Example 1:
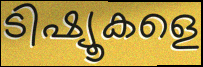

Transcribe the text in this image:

ടിഷ്യൂകളെ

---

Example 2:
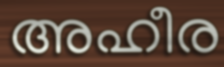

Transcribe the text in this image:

അഹീര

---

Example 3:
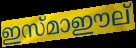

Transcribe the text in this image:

ഇസ്മാഈല്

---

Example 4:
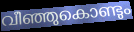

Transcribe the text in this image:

വീഞ്ഞുകൊണ്ടും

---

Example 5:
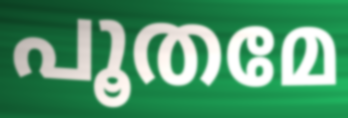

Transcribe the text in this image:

പൂതമേ